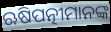
ଋଷିପତ୍ନୀମାନଙ୍କ